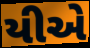
યીએ